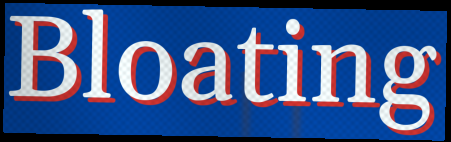
Bloating